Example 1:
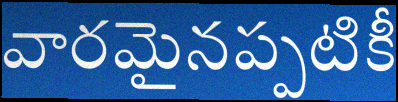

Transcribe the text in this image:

వారమైనప్పటికీ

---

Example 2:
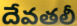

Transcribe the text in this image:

దేవతలీ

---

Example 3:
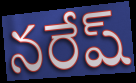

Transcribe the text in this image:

నరేష్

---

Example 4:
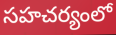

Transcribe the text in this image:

సహచర్యంలో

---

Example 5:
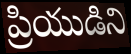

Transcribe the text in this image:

ప్రియుడిని